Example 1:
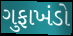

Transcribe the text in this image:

ગુફાખંડો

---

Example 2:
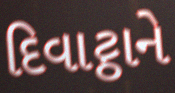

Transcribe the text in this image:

દિવાટ્ઠાને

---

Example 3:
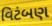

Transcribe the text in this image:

વિટંબણ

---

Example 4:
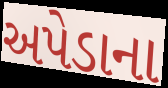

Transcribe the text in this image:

અપેડાના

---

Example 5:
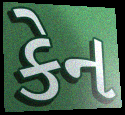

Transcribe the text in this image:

કેન